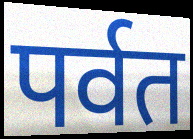
पर्वत